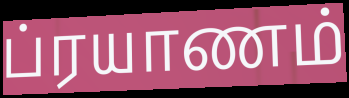
ப்ரயாணம்